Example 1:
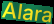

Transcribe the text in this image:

Alara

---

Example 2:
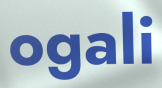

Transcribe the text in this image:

ogali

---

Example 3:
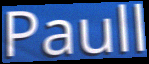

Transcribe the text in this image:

Paull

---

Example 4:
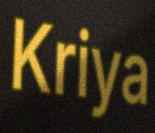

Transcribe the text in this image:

Kriya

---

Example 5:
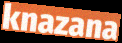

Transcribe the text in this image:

knazana